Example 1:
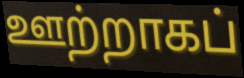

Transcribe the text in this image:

ஊற்றாகப்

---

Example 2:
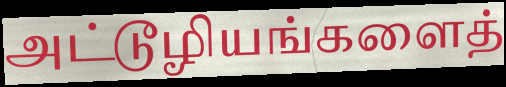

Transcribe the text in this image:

அட்டூழியங்களைத்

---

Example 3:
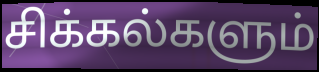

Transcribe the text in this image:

சிக்கல்களும்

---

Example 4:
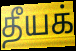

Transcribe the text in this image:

தீயக்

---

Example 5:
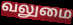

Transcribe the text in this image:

வலுமை